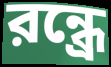
রন্ধ্রে